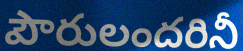
పౌరులందరినీ